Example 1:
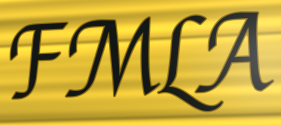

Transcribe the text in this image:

FMLA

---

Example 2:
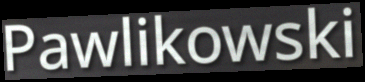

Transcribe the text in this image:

Pawlikowski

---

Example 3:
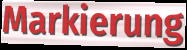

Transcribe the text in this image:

Markierung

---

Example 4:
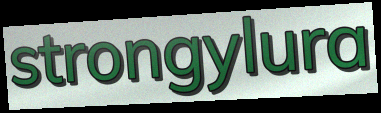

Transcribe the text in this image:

strongylura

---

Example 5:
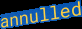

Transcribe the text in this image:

annulled